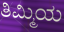
ತಿಮ್ಮಿಯ